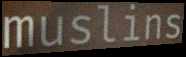
muslins